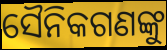
ସୈନିକଗଣଙ୍କୁ